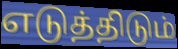
எடுத்திடும்